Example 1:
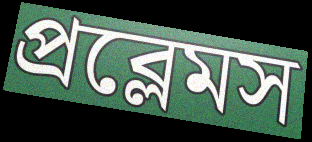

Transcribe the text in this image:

প্রব্লেমস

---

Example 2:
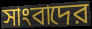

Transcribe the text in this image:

সাংবাদের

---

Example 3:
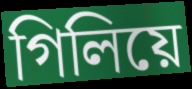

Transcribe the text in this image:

গিলিয়ে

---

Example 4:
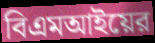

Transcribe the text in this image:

বিএমআইয়ের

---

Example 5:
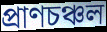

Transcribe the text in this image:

প্রাণচঞ্চল